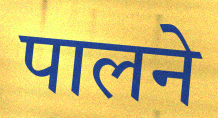
पालने